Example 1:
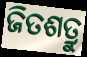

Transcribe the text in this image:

ଜିତଶତ୍ରୁ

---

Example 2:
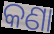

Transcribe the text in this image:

କଣା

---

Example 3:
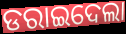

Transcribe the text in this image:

ଡରାଇଦେଲା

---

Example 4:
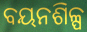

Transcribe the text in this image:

ବୟନଶିଳ୍ପ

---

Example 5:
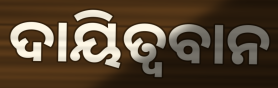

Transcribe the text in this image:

ଦାୟିତ୍ବବାନ